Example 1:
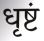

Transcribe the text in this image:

धृष्टं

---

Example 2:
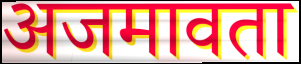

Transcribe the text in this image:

अजमावता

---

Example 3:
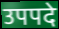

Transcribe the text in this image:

उपपदे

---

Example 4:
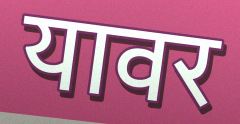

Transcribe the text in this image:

यावर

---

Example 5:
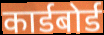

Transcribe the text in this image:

कार्डबोर्ड